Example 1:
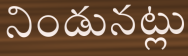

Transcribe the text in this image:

నిండునట్లు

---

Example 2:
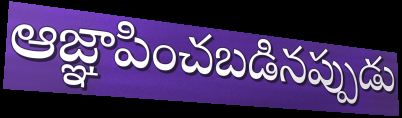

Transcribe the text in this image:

ఆజ్ఞాపించబడినప్పుడు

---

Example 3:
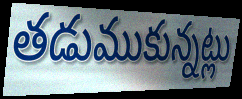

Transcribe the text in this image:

తడుముకున్నట్లు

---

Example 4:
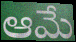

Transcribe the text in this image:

ఆమే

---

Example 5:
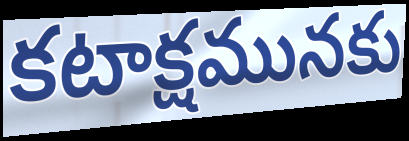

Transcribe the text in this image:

కటాక్షమునకు